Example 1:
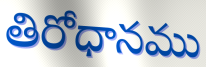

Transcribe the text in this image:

తిరోధానము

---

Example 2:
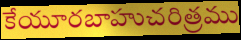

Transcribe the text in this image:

కేయూరబాహుచరిత్రము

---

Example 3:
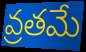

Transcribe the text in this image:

వ్రతమే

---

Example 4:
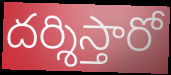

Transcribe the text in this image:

దర్శిస్తారో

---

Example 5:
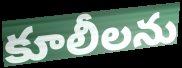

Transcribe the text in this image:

కూలీలను